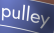
pulley